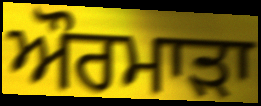
ਔਰਮਾੜਾ